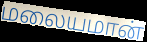
மலையமான்